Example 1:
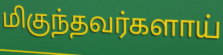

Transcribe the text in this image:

மிகுந்தவர்களாய்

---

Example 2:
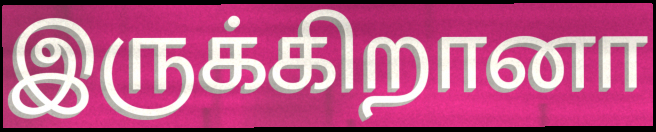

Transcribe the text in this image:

இருக்கிறானா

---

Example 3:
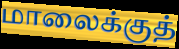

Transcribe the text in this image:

மாலைக்குத்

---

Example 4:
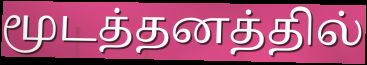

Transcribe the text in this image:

மூடத்தனத்தில்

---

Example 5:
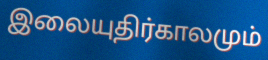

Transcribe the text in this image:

இலையுதிர்காலமும்